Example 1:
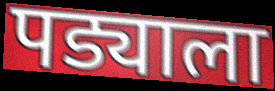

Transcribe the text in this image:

पड्याला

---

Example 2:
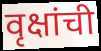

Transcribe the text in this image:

वृक्षांची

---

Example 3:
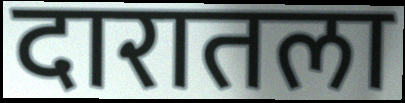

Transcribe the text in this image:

दारातला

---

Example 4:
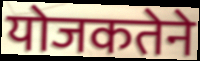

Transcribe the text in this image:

योजकतेने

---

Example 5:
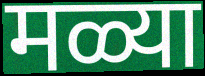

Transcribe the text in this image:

मळ्या